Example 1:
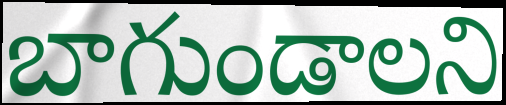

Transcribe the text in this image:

బాగుండాలని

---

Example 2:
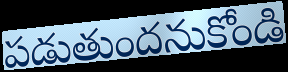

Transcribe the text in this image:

పడుతుందనుకోండి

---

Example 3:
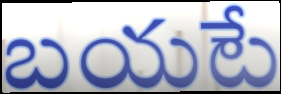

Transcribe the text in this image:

బయటే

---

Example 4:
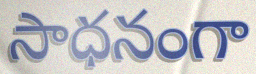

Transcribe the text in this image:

సాధనంగా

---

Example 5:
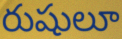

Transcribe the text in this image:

రుషులూ